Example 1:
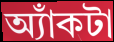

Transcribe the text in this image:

অ্যাঁকটা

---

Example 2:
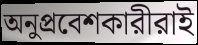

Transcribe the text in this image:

অনুপ্রবেশকারীরাই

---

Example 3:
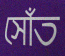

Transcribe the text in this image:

সোঁত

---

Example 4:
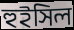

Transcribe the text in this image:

হুইসিল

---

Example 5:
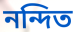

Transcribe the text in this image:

নন্দিত